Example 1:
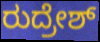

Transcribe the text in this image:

ರುದ್ರೇಶ್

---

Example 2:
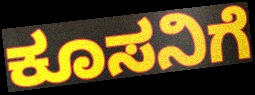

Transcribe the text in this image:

ಕೂಸನಿಗೆ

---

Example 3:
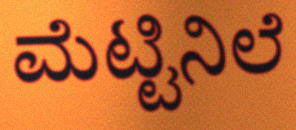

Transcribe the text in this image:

ಮೆಟ್ಟಿನಿಲೆ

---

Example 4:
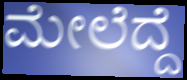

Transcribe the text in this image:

ಮೇಲೆದ್ದೆ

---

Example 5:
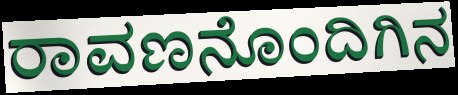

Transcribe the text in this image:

ರಾವಣನೊಂದಿಗಿನ